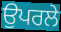
ਉਪਰਲੇ